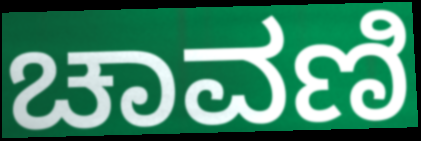
ಚಾವಣಿ